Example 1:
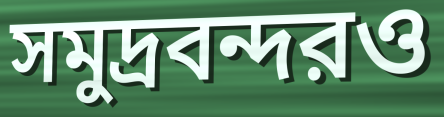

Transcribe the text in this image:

সমুদ্রবন্দরও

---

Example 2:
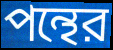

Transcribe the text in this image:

পন্থের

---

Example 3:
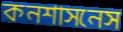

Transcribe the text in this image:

কনশাসনেস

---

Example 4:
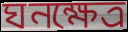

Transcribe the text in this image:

ঘনক্ষেত্র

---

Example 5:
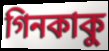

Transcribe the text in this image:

গিনকাকু